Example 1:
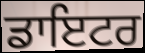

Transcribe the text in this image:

ਡਾਇਟਰ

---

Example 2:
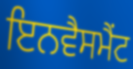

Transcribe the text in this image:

ਇਨਵੈਸਮੈਂਟ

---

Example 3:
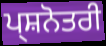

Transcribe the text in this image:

ਪ੍ਸ਼ਨੋਤਰੀ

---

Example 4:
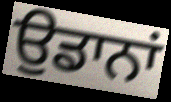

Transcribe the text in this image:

ਉਡਾਨਾਂ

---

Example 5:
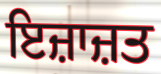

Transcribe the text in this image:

ਇਜ਼ਾਜ਼ਤ